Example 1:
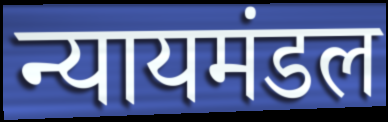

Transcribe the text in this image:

न्यायमंडल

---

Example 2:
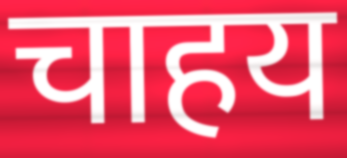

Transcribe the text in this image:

चाहय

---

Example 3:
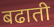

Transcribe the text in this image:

बढाती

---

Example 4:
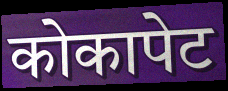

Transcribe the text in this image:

कोकापेट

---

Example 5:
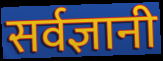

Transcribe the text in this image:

सर्वज्ञानी